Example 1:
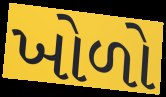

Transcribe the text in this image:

ખોળો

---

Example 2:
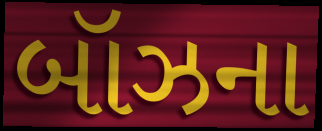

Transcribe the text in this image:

બૉઝના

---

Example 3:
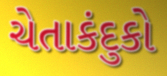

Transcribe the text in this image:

ચેતાકંદુકો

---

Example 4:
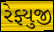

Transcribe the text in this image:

રેફ્યુજી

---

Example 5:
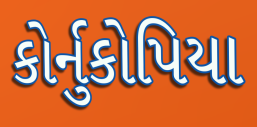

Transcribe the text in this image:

કોર્નુકોપિયા